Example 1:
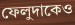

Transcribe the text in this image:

ফেলুদাকেও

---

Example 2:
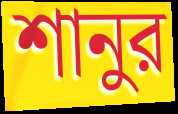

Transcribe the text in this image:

শানুর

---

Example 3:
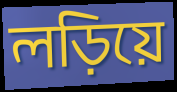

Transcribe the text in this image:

লড়িয়ে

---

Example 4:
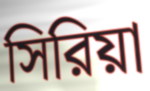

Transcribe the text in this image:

সিরিয়া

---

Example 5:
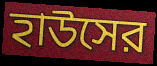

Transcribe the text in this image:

হাউসের